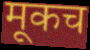
मूकच